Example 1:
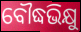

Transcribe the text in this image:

ବୌଦ୍ଧଭିକ୍ଷୁ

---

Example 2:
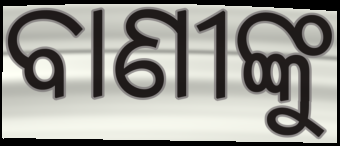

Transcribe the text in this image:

ବାଣୀଙ୍କୁ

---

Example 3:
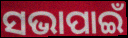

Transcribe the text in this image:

ସଭାପାଇଁ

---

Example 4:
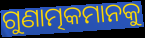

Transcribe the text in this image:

ଗୁଣାତ୍ମକମାନକୁ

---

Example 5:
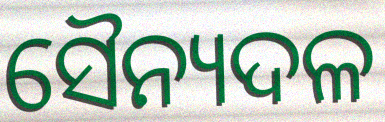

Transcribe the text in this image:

ସୈନ୍ୟଦଳ